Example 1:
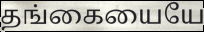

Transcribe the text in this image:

தங்கையையே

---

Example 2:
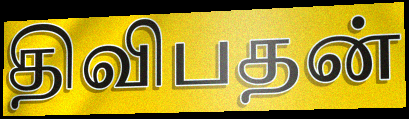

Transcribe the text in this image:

திவிபதன்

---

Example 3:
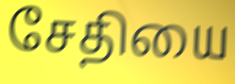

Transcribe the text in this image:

சேதியை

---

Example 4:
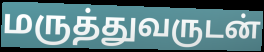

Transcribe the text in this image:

மருத்துவருடன்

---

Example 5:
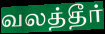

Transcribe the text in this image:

வலத்தீர்